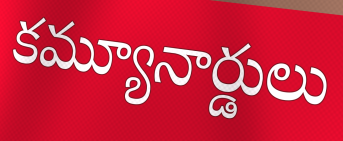
కమ్యూనార్డులు